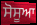
ਸੋਸੂਆ